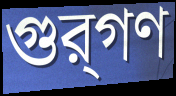
গুর্‌গণ